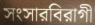
সংসারবিরাগী